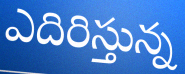
ఎదిరిస్తున్న